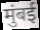
मुंबई